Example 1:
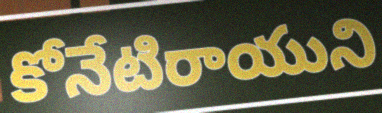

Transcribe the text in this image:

కోనేటిరాయుని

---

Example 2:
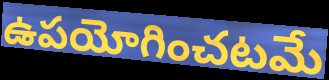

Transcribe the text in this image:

ఉపయోగించటమే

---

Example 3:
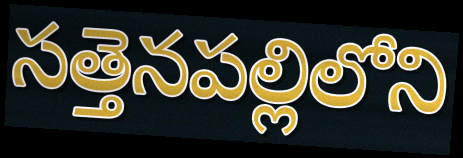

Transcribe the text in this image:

సత్తెనపల్లిలోని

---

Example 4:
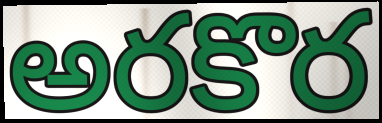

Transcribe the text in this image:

అరకొర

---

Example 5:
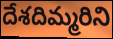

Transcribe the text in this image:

దేశదిమ్మరిని